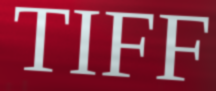
TIFF